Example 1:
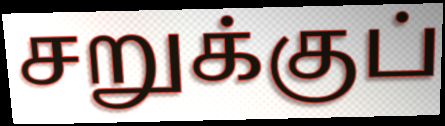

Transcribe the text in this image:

சறுக்குப்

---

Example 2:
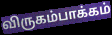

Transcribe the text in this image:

விருகம்பாக்கம்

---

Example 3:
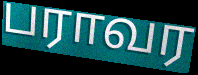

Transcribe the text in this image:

பராவர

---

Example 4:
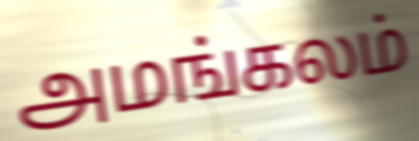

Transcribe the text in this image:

அமங்கலம்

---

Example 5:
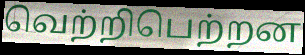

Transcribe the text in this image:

வெற்றிபெற்றன